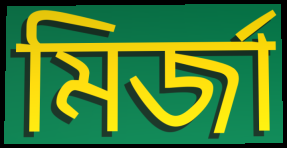
মির্জা